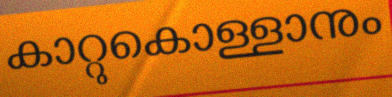
കാറ്റുകൊള്ളാനും